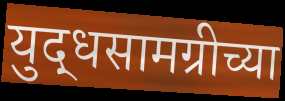
युद्धसामग्रीच्या